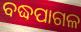
ବଦ୍ଧପାଗଳ